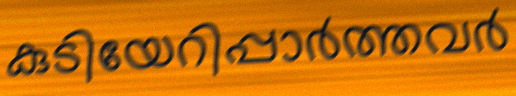
കുടിയേറിപ്പാർത്തവർ